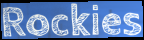
Rockies